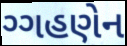
ગ્ગહણેન